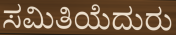
ಸಮಿತಿಯೆದುರು